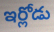
ఇర్లోడు